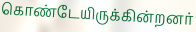
கொண்டேயிருக்கின்றனர்